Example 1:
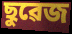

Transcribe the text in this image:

ছুৱেজ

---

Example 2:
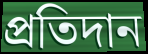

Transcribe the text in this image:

প্ৰতিদান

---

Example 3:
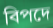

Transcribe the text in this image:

বিপদে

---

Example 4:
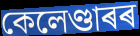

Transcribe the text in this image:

কেলেণ্ডাৰৰ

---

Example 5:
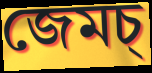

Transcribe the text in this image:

জেমচ্